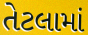
તેટલામાં